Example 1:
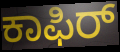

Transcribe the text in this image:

ಕಾಫಿರ್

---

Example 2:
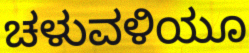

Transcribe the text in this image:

ಚಳುವಳಿಯೂ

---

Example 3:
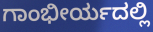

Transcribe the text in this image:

ಗಾಂಭೀರ್ಯದಲ್ಲಿ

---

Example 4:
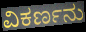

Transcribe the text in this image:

ವಿಕರ್ಣನು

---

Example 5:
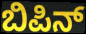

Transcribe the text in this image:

ಬಿಪಿನ್